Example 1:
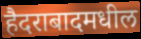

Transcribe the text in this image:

हैदराबादमधील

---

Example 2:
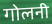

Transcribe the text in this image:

गोलनी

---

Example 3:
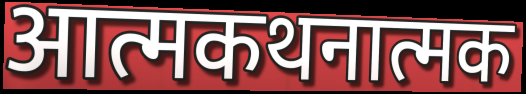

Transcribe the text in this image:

आत्मकथनात्मक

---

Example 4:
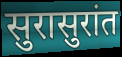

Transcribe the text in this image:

सुरासुरांत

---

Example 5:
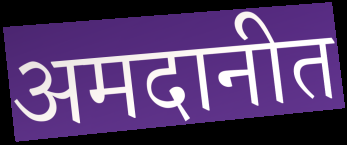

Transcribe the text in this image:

अमदानीत